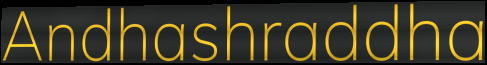
Andhashraddha